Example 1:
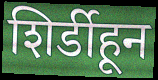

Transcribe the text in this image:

शिर्डीहून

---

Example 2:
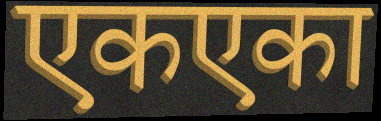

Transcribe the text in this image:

एकएका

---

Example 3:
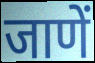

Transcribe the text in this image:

जाणें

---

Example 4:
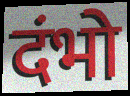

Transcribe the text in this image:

दंभो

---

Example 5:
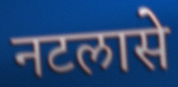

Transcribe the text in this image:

नटलासे